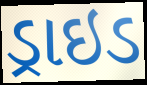
ડ્રાઇડ